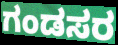
ಗಂಡಸರ